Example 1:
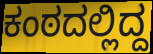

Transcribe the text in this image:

ಕಂಠದಲ್ಲಿದ್ದ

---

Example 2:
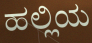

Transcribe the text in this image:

ಹಲ್ಲಿಯ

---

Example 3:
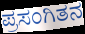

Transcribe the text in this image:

ಪ್ರಸಂಗಿತನ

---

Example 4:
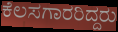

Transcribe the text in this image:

ಕೆಲಸಗಾರರಿದ್ದರು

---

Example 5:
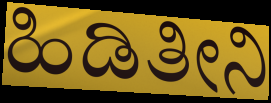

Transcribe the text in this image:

ಹಿಡಿತೀನಿ